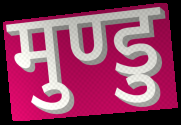
मुण्डु